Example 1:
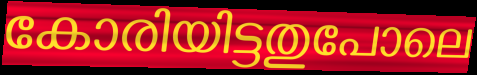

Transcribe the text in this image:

കോരിയിട്ടതുപോലെ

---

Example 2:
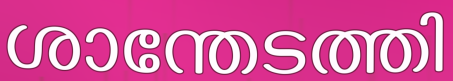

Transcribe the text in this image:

ശാന്തേടത്തി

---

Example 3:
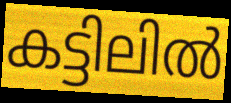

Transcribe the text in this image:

കട്ടിലിൽ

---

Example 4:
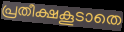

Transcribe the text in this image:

പ്രതീക്ഷകൂടാതെ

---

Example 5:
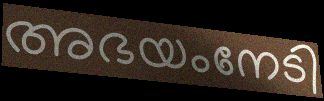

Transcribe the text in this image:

അഭയംനേടി